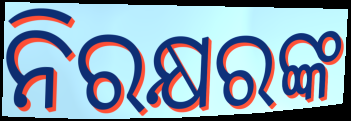
ନିରକ୍ଷରଙ୍କ